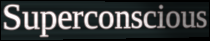
Superconscious